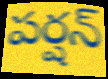
పర్షన్